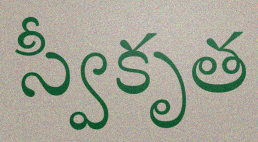
స్వీకృత